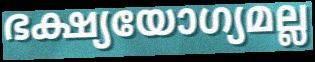
ഭക്ഷ്യയോഗ്യമല്ല